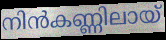
നിൻകണ്ണിലായ്